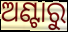
ଅଣ୍ଟାରୁ